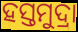
ହସ୍ତମୁଦ୍ରା